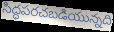
సిద్ధపరచబడియున్నది